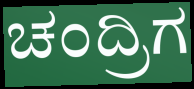
ಚಂದ್ರಿಗ